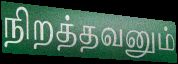
நிறத்தவனும்